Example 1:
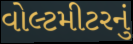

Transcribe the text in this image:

વોલ્ટમીટરનું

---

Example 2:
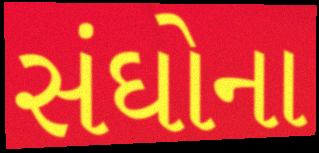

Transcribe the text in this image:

સંઘોના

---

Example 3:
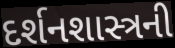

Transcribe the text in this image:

દર્શનશાસ્ત્રની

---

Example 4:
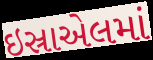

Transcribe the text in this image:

ઇસ્રાએલમાં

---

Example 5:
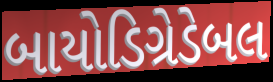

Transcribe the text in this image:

બાયોડિગ્રેડેબલ